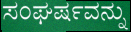
ಸಂಘರ್ಷವನ್ನು